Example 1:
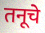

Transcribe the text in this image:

तनूचे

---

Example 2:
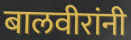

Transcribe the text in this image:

बालवीरांनी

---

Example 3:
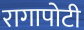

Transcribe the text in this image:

रागापोटी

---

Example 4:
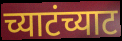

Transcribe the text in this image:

च्याटंच्याट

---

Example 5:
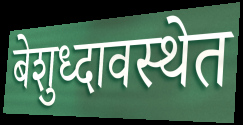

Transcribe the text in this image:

बेशुध्दावस्थेत